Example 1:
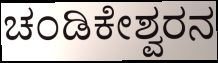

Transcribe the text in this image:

ಚಂಡಿಕೇಶ್ವರನ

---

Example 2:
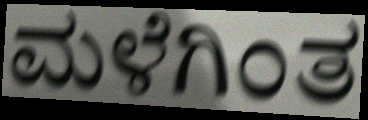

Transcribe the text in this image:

ಮಳೆಗಿಂತ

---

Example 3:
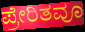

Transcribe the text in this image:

ಪ್ರೇರಿತವೂ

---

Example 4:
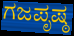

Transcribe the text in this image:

ಗಜಪೃಷ್ಠ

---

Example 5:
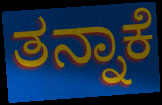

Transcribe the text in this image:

ತನ್ನಾಕೆ